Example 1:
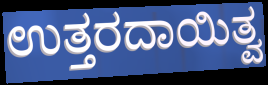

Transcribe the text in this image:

ಉತ್ತರದಾಯಿತ್ವ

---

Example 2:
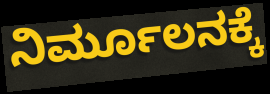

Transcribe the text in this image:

ನಿರ್ಮೂಲನಕ್ಕೆ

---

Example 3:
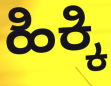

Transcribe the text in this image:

ಹಿಕ್ಕಿ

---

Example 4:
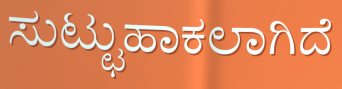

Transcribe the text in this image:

ಸುಟ್ಟುಹಾಕಲಾಗಿದೆ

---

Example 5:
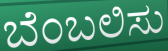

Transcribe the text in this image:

ಬೆಂಬಲಿಸು